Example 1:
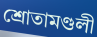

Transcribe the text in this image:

শ্রোতামণ্ডলী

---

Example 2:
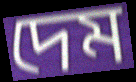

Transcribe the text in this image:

দেম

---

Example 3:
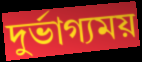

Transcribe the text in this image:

দুর্ভাগ্যময়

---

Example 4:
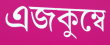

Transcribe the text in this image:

এজকুম্বে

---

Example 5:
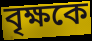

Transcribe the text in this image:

বৃক্ষকে